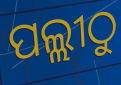
ପଲ୍ଲୀଠୁ